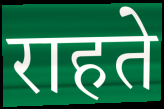
राहते